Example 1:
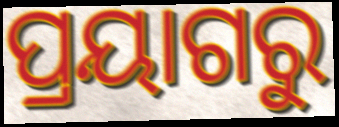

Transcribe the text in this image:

ପ୍ରୟାଗରୁ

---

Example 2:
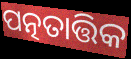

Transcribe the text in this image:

ପତ୍ନତାତ୍ତିକ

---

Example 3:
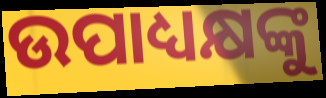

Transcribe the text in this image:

ଉପାଧ୍ୟକ୍ଷଙ୍କୁ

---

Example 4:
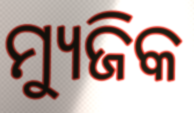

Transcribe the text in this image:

ମ୍ୟୁଜିକ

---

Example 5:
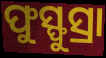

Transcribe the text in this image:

ଫୁସ୍ଫୁସ୍ରା